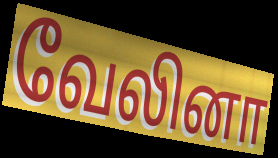
வேலினா